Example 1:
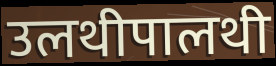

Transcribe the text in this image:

उलथीपालथी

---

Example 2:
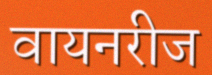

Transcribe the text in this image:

वायनरीज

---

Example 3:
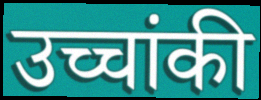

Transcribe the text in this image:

उच्चांकी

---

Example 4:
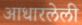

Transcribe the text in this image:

आधारलेली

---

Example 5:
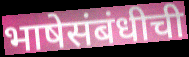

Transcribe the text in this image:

भाषेसंबंधीची